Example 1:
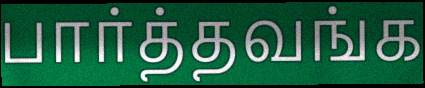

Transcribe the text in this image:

பார்த்தவங்க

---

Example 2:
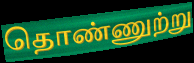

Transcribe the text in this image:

தொண்ணுற்று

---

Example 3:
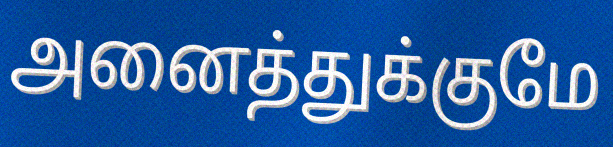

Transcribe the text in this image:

அனைத்துக்குமே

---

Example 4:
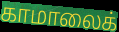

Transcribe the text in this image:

காமாலைக்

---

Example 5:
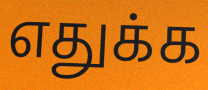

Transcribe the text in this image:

எதுக்க